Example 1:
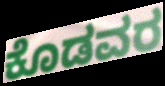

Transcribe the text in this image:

ಕೊಡವರ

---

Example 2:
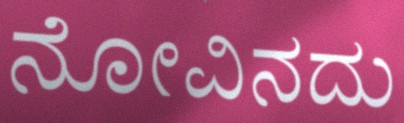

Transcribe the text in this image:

ನೋವಿನದು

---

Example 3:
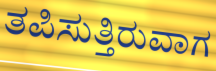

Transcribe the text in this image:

ತಪಿಸುತ್ತಿರುವಾಗ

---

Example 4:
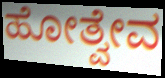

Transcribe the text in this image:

ಹೋತ್ವೇವ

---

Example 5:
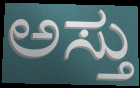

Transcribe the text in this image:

ಅಸ್ತು